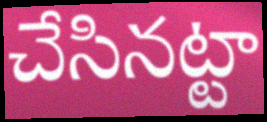
చేసినట్టా